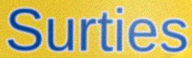
Surties